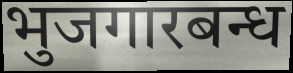
भुजगारबन्ध